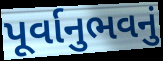
પૂર્વાનુભવનું